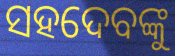
ସହଦେବଙ୍କୁ